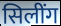
सिलींग